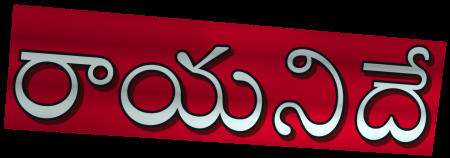
రాయనిదే